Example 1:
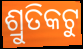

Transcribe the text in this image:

ଶ୍ରୁତିକଟୁ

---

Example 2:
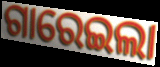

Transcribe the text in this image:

ଗାରେଇଲା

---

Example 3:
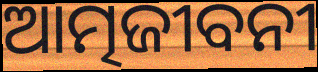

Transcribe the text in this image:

ଆତ୍ମଜୀବନୀ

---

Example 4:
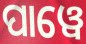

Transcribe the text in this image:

ପାୱେ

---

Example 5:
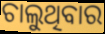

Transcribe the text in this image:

ଚାଲୁଥିବାର